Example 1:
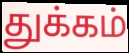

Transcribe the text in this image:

துக்கம்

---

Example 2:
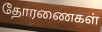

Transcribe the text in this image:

தோரணைகள்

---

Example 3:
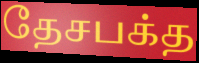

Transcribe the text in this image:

தேசபக்த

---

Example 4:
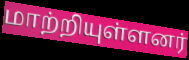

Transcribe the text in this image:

மாற்றியுள்ளனர்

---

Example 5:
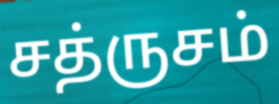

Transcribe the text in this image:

சத்ருசம்